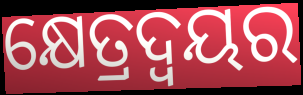
କ୍ଷେତ୍ରଦ୍ୱୟର